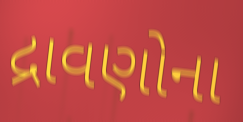
દ્રાવણોના